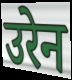
उरेन